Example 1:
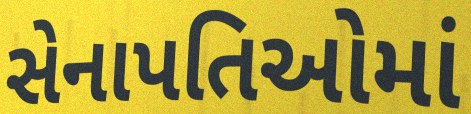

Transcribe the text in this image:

સેનાપતિઓમાં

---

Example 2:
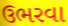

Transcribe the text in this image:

ઉભરવા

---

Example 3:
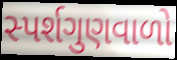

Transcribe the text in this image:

સ્પર્શગુણવાળો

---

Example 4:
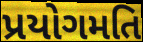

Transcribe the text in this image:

પ્રયોગમતિ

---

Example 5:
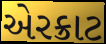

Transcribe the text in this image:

એરક્રાટ